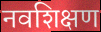
नवशिक्षण